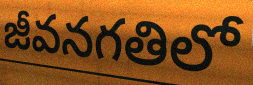
జీవనగతిలో